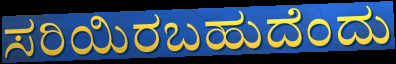
ಸರಿಯಿರಬಹುದೆಂದು